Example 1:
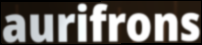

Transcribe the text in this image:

aurifrons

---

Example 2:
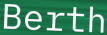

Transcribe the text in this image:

Berth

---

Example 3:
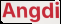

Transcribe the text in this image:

Angdi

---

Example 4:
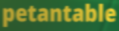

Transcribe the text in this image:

petantable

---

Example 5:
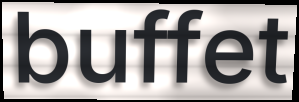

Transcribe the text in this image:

buffet